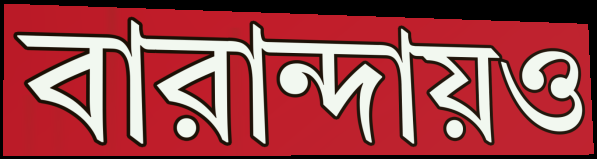
বারান্দায়ও